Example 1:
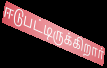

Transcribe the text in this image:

ஈடுபட்டிருக்கிறார்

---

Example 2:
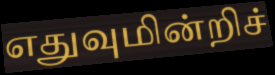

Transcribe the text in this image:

எதுவுமின்றிச்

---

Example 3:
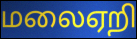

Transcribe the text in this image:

மலைஏறி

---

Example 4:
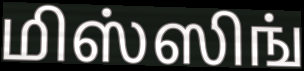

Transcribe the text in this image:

மிஸ்ஸிங்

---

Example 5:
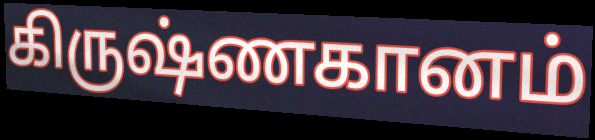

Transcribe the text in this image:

கிருஷ்ணகானம்